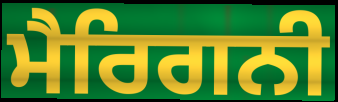
ਮੈਰਿਗਨੀ